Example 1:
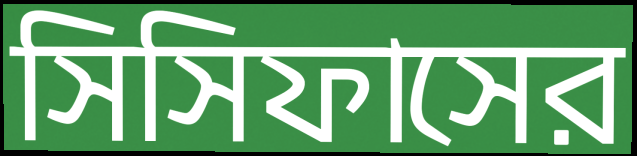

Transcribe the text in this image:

সিসিফাসের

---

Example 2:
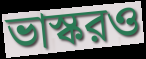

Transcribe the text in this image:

ভাস্করও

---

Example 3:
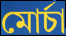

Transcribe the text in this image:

মোর্চা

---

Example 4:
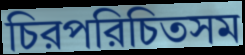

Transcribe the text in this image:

চিরপরিচিতসম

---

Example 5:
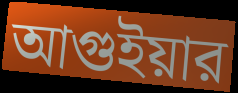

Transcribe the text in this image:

আগুইয়ার